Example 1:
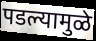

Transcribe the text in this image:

पडल्यामुळे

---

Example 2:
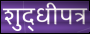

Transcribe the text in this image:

शुद्धीपत्र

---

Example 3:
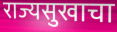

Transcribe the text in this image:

राज्यसुखाचा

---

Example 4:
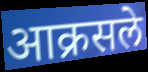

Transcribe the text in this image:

आक्रसले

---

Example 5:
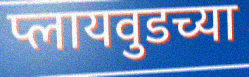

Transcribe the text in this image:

प्लायवुडच्या